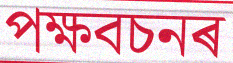
পক্ষবচনৰ